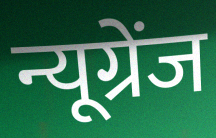
न्यूग्रेंज